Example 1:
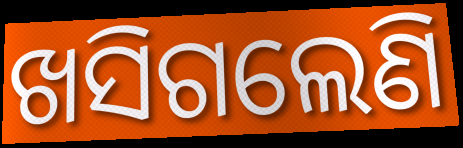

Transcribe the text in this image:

ଖସିଗଲେଣି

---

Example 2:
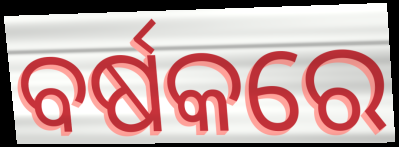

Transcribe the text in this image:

ବର୍ଷକରେ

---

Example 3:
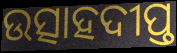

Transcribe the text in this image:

ଉତ୍ସାହଦୀପ୍ତ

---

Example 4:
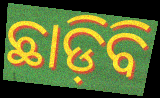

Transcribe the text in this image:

ଛାଡ଼ିବି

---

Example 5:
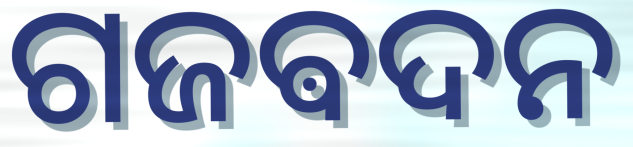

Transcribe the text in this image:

ଗଜଵଦନ